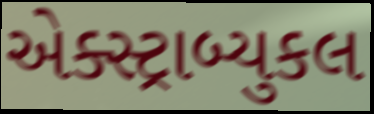
એક્સ્ટ્રાબ્યુકલ